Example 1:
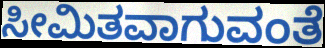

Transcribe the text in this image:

ಸೀಮಿತವಾಗುವಂತೆ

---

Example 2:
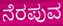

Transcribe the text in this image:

ನೆರಪುವ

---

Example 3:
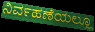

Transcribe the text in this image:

ನಿರ್ವಹಣೆಯಲ್ಲೂ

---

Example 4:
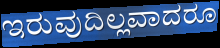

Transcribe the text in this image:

ಇರುವುದಿಲ್ಲವಾದರೂ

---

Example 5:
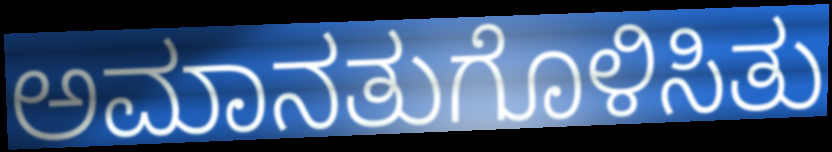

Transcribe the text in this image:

ಅಮಾನತುಗೊಳಿಸಿತು